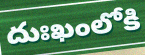
దుఃఖంలోకి